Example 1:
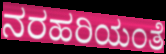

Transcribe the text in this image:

ನರಹರಿಯಂತೆ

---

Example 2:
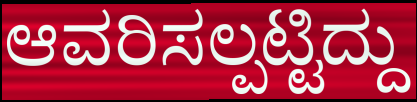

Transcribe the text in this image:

ಆವರಿಸಲ್ಪಟ್ಟಿದ್ದು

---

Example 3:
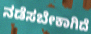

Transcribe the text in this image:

ನಡೆಸಬೇಕಾಗಿದೆ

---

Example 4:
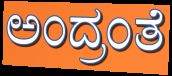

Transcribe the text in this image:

ಅಂದ್ರಂತೆ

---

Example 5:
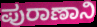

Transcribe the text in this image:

ಪುರಾಣಾನಿ